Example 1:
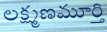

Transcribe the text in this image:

లక్ష్మణమూర్తి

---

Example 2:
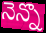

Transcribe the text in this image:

నెన్నొ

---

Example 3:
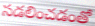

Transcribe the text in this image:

సడలించడంతో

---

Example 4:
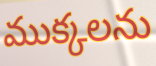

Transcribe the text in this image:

ముక్కలను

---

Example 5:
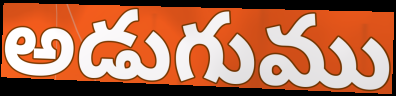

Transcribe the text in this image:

అడుగుము